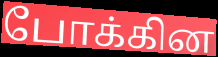
போக்கின